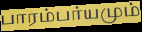
பாரம்பர்யமும்